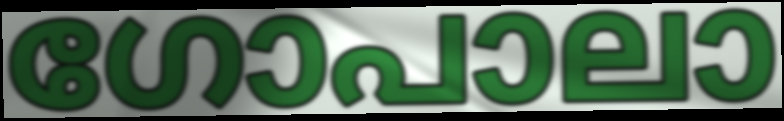
ഗോപാലാ